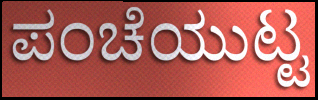
ಪಂಚೆಯುಟ್ಟ